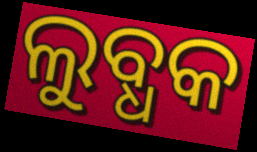
ଲୁବ୍ଧକ